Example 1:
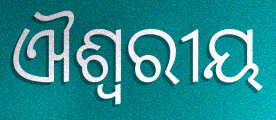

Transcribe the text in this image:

ଐଶ୍ୱରୀୟ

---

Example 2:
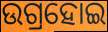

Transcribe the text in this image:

ଉଗ୍ରହୋଇ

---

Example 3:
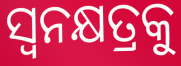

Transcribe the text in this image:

ସ୍ୱନକ୍ଷତ୍ରକୁ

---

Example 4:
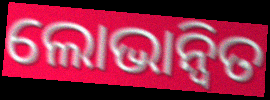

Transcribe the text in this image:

ଲୋଭାନ୍ୱିତ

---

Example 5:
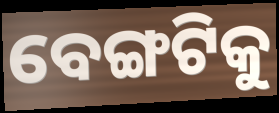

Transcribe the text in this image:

ବେଙ୍ଗଟିକୁ